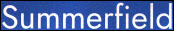
Summerfield